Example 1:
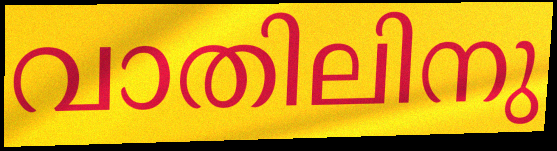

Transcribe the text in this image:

വാതിലിനു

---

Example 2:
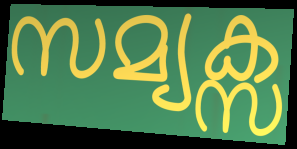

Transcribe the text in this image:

സമ്യക്സ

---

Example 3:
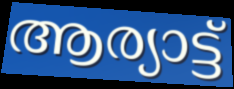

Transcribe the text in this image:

ആര്യാട്ട്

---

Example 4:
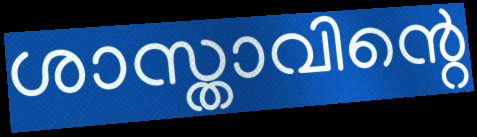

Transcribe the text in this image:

ശാസ്താവിന്റെ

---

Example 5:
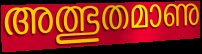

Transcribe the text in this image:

അത്ഭുതമാണു